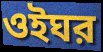
ওইঘর